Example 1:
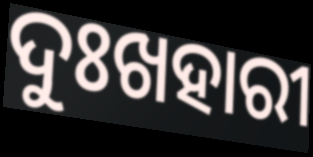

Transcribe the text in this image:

ଦୁଃଖହାରୀ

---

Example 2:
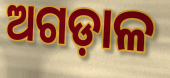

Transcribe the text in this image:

ଅଗଡ଼ାଳ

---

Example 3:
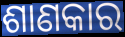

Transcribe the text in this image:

ଶାଣକାର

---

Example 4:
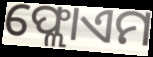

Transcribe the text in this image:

ଫ୍ଲୋଏମ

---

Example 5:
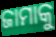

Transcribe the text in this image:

ଜାମାକୁ